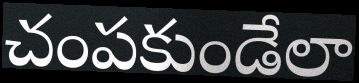
చంపకుండేలా